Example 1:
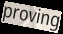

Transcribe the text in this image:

proving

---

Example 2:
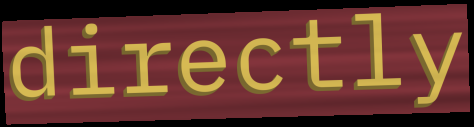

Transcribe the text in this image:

directly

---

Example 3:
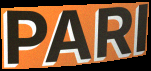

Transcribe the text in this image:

PARI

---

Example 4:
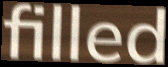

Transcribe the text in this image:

filled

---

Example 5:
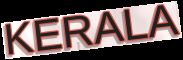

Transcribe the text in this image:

KERALA